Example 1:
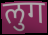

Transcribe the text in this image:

लुग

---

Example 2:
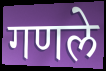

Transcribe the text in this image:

गणले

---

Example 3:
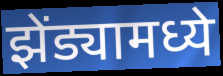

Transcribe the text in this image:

झेंड्यामध्ये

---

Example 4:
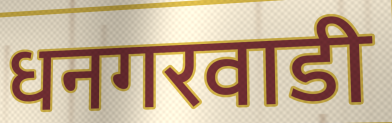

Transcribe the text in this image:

धनगरवाडी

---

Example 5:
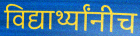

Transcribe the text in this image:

विद्यार्थ्यांनीच